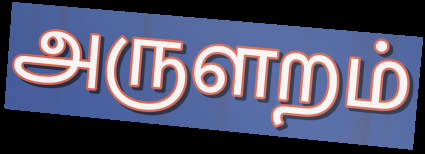
அருளறம்